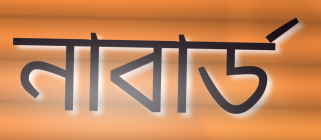
নাবার্ড